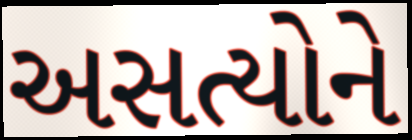
અસત્યોને